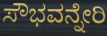
ಸೌಭವನ್ನೇರಿ